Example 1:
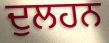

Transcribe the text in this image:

ਦੁਲਹਨ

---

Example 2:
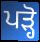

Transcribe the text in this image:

ਪੜ੍ਹੋ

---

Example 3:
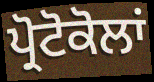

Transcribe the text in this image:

ਪ੍ਰੋਟੋਕੋਲਾਂ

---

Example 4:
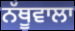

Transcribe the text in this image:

ਨੱਥੂਵਾਲਾ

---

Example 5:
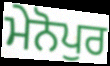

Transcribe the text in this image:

ਮੇਨੋਪੁਰ